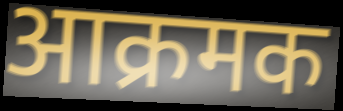
आक्रमक